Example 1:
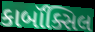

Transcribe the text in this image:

કાર્બૉક્સિલ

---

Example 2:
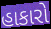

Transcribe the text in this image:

હાકારો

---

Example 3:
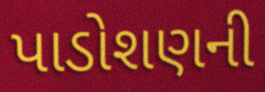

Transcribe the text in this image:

પાડોશણની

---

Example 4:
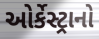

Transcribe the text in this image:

ઓર્કેસ્ટ્રાનો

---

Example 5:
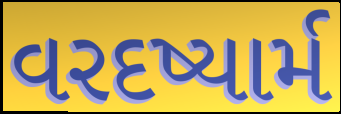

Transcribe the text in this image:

વરદષ્યાર્મ